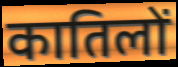
कातिलों